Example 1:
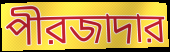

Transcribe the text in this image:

পীরজাদার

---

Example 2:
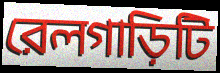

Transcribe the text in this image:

রেলগাড়িটি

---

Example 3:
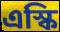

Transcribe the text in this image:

এস্কি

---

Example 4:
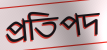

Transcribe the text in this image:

প্রতিপদ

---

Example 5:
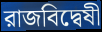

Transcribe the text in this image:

রাজবিদ্বেষী